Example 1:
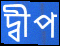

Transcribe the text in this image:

দ্বীপ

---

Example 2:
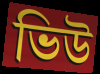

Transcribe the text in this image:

ভিউ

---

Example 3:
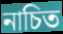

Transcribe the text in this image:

নাচিত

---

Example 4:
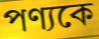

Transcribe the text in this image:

পণ্যকে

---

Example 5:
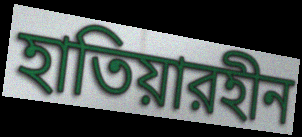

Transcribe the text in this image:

হাতিয়ারহীন